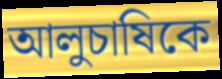
আলুচাষিকে